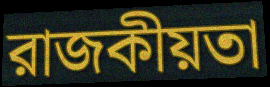
রাজকীয়তা